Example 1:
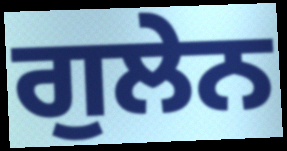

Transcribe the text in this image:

ਗੁਲੇਨ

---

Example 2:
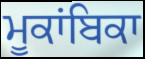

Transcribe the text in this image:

ਮੂਕਾਂਬਿਕਾ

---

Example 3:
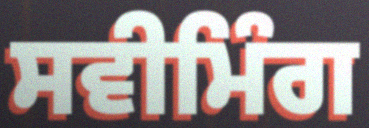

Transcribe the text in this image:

ਸਵੀਮਿੰਗ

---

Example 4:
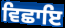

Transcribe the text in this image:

ਵਿਛਾਇ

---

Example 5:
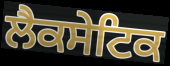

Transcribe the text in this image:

ਲੈਕਸੇਟਿਕ